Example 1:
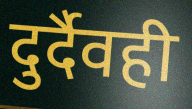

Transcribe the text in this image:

दुर्दैवही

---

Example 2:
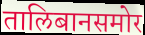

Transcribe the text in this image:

तालिबानसमोर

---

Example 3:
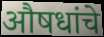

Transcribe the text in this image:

औषधांचे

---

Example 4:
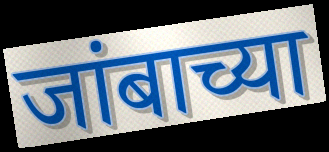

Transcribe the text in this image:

जांबाच्या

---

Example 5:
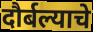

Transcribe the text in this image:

दौर्बल्याचे